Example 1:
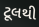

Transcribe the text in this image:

ટૂલથી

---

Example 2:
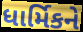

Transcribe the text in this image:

ધાર્મિકને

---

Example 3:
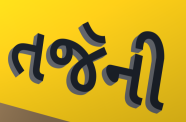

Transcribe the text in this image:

તજૅની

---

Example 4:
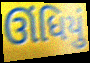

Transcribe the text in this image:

ઊંધિયું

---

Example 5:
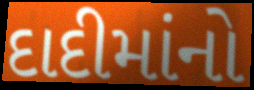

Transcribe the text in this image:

દાદીમાંનો